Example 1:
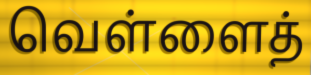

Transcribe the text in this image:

வெள்ளைத்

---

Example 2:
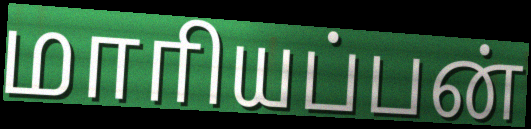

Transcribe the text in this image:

மாரியப்பன்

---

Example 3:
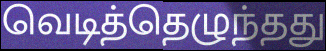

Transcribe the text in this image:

வெடித்தெழுந்தது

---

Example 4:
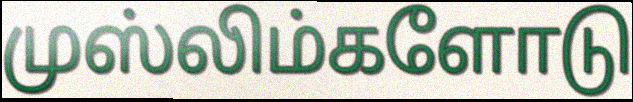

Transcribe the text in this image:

முஸ்லிம்களோடு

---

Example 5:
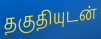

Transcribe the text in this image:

தகுதியுடன்